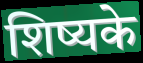
शिष्यके